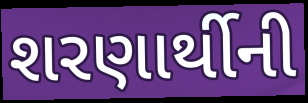
શરણાર્થીની